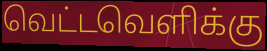
வெட்டவெளிக்கு